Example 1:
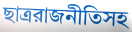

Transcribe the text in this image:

ছাত্ররাজনীতিসহ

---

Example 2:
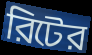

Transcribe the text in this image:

রিটের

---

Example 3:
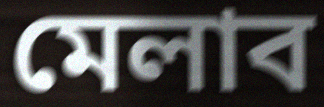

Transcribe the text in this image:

মেলাব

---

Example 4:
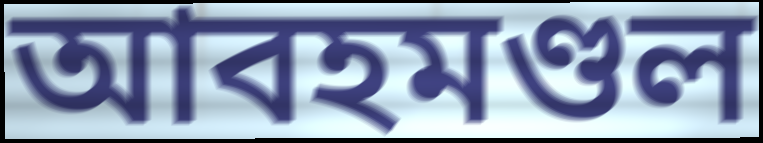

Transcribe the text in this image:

আবহমণ্ডল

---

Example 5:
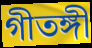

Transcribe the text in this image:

গীতঙ্গী